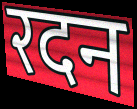
रदन